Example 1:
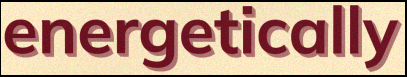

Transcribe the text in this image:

energetically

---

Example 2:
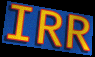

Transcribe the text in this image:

IRR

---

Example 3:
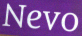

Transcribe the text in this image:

Nevo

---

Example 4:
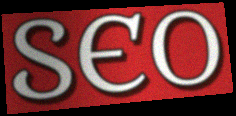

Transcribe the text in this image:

SEO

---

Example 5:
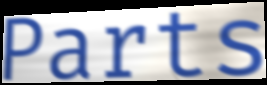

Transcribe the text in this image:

Parts